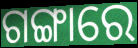
ଗଙ୍ଗାରେ